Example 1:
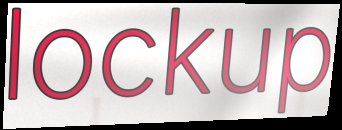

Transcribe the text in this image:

lockup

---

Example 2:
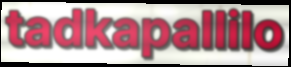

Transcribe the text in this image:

tadkapallilo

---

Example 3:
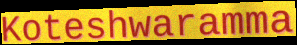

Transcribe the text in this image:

Koteshwaramma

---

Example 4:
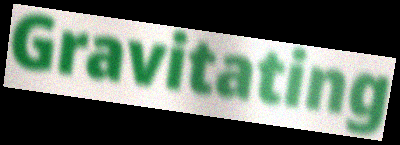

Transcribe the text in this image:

Gravitating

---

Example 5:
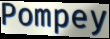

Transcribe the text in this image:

Pompey